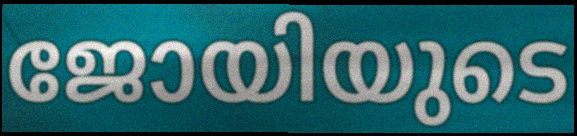
ജോയിയുടെ